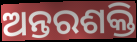
ଅନ୍ତରଶକ୍ତି